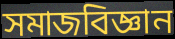
সমাজবিজ্ঞান